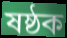
ষষ্ঠক